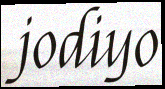
jodiyo